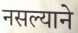
नसल्‍याने